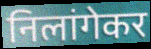
निलांगेकर